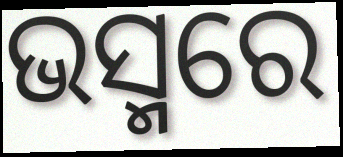
ଭସ୍ମରେ